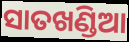
ସାତଖଣ୍ଡିଆ